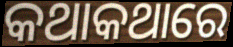
କଥାକଥାରେ